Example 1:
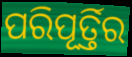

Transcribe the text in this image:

ପରିପୂର୍ତ୍ତିର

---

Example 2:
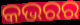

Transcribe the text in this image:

କଭରର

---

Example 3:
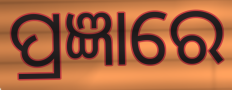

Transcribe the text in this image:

ପ୍ରଜ୍ଞାରେ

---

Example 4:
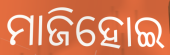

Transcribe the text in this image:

ମାଜିହୋଇ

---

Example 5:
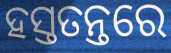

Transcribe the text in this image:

ହସ୍ତତନ୍ତରେ